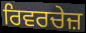
ਰਿਵਰਚੇਜ਼